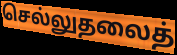
செல்லுதலைத்